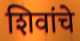
शिवांचे